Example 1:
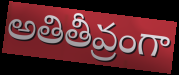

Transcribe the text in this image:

అతితీవ్రంగా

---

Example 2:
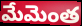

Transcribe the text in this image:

మేమెంత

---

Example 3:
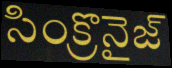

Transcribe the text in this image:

సింక్రొనైజ్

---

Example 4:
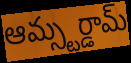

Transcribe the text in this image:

ఆమ్స్టర్డామ్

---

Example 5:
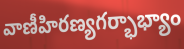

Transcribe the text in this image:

వాణీహిరణ్యగర్భాభ్యాం